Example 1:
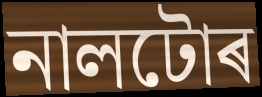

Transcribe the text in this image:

নালটোৰ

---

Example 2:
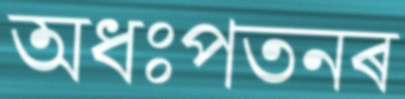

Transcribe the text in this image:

অধঃপতনৰ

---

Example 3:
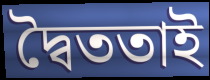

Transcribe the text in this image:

দ্বৈততাই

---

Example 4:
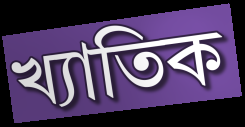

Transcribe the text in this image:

খ্যাতিক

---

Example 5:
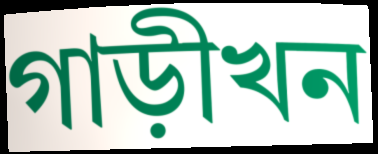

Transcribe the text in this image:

গাড়ীখন